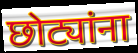
छोट्यांना